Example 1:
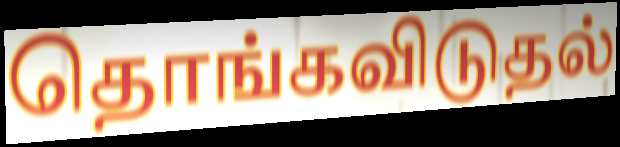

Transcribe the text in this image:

தொங்கவிடுதல்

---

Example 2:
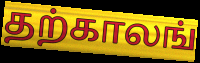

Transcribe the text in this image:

தற்காலங்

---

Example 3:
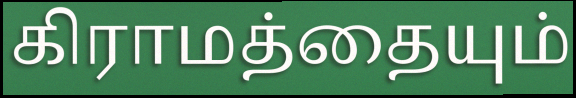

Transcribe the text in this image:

கிராமத்தையும்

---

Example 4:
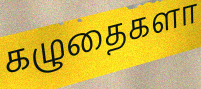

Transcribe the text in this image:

கழுதைகளா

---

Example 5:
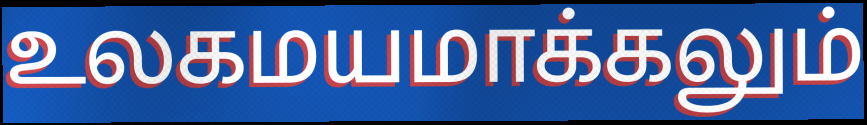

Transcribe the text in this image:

உலகமயமாக்கலும்